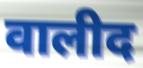
वालीद